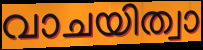
വാചയിത്വാ